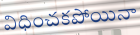
విధించకపోయినా